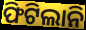
ଫିଟିଲାନି